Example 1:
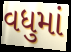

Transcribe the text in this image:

વધુમાં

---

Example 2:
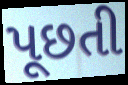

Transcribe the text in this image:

પૂછતી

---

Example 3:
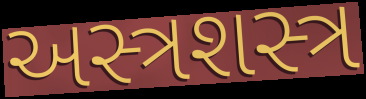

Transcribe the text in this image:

અસ્ત્રશસ્ત્ર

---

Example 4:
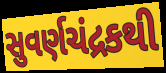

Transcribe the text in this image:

સુવર્ણચંદ્રકથી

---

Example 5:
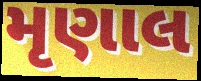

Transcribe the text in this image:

મૃણાલ